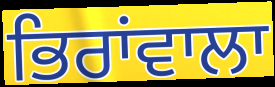
ਭਿਰਾਂਵਾਲਾ